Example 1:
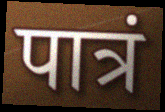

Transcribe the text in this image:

पात्रं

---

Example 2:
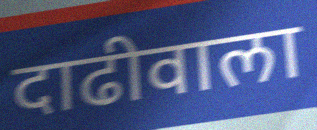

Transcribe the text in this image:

दाढीवाला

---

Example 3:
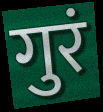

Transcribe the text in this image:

गुरं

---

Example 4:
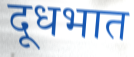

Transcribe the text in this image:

दूधभात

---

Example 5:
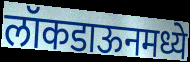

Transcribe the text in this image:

लॉकडाऊनमध्ये